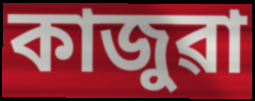
কাজুৱা